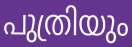
പുത്രിയും